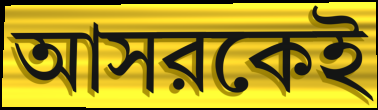
আসরকেই